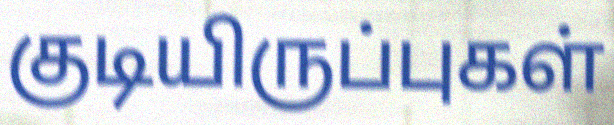
குடியிருப்புகள்